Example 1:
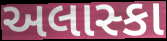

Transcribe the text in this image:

અલાસ્કા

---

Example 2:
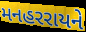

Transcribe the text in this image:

મનહરરાયને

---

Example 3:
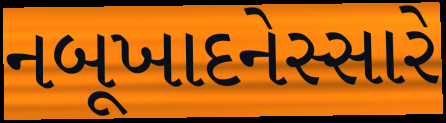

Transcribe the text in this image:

નબૂખાદનેસ્સારે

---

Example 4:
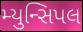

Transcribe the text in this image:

મ્યુન્સિપલ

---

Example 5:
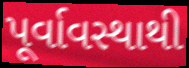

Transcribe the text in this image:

પૂર્વાવસ્થાથી